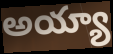
అయ్యా